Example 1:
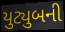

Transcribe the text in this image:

યુટ્યુબની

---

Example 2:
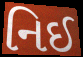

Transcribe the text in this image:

નિઈ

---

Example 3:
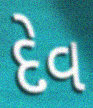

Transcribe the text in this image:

દેવ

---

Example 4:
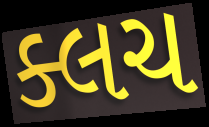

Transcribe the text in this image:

ક્લચ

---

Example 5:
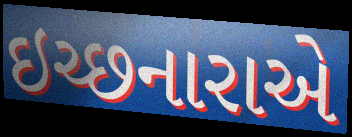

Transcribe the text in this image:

ઇચ્છનારાએ